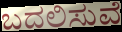
ಬದಲಿಸುವೆ